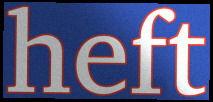
heft